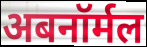
अबनॉर्मल